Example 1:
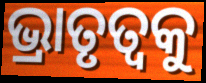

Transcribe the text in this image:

ଭ୍ରାତୃତ୍ୱକୁ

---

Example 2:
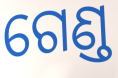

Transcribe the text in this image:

ଗେଣ୍ଡ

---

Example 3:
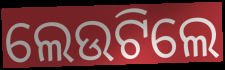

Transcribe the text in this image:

ଲେଉଟିଲେ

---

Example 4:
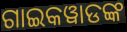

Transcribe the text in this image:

ଗାଇକୱାଡଙ୍କ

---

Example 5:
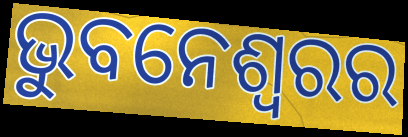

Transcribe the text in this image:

ଭୁବନେଶ୍ଵରର